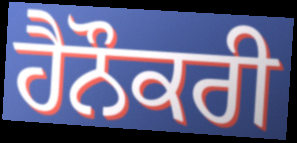
ਹੈਨੌਕਰੀ